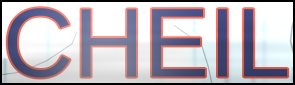
CHEIL